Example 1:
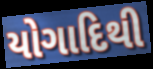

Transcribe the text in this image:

યોગાદિથી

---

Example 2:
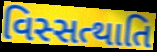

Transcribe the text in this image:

વિસ્સત્થાતિ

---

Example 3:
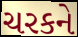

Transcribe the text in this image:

ચરકને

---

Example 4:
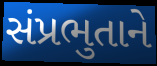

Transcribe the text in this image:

સંપ્રભુતાને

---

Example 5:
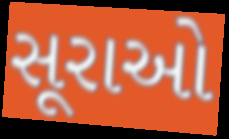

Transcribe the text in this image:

સૂરાઓ